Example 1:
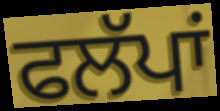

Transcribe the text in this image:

ਫਲੱਪਾਂ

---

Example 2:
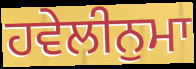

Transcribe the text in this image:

ਹਵੇਲੀਨੁਮਾ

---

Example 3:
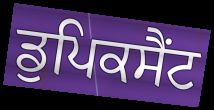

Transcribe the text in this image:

ਡੁਪਿਕਸੈਂਟ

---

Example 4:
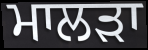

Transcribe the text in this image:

ਮਾਲੜਾ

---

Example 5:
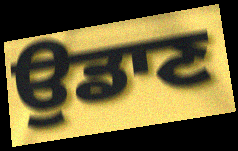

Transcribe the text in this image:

ਉਡਾਣ